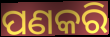
ପଣକରି